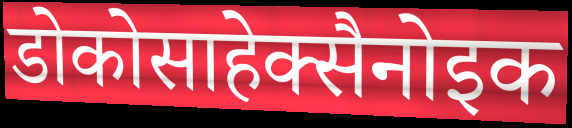
डोकोसाहेक्सैनोइक